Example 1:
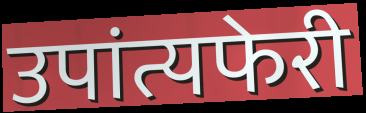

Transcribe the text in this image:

उपांत्यफेरी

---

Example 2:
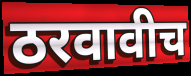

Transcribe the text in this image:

ठरवावीच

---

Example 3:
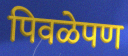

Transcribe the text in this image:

पिवळेपण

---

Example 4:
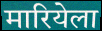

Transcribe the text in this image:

मारियेला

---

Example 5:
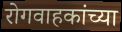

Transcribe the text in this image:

रोगवाहकांच्या